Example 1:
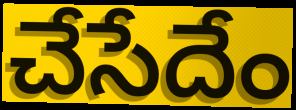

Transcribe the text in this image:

చేసేదేం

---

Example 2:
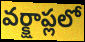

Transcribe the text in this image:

వర్క్షాప్లలో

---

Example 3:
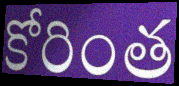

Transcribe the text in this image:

కోరింత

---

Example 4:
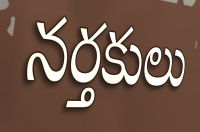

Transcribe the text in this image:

నర్తకులు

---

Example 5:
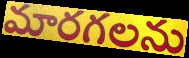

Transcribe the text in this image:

మారగలను